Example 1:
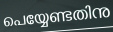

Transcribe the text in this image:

പെയ്യേണ്ടതിനു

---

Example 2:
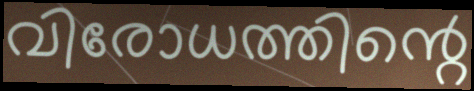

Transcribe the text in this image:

വിരോധത്തിന്റെ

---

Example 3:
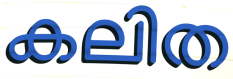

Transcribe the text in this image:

കലിത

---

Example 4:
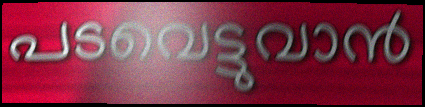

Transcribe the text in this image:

പടവെട്ടുവാൻ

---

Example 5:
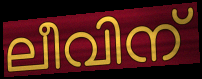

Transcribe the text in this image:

ലീവിന്